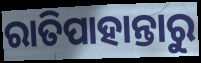
ରାତିପାହାନ୍ତାରୁ